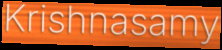
Krishnasamy